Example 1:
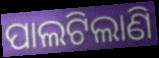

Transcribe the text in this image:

ପାଲଟିଲାଣି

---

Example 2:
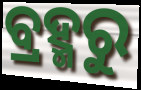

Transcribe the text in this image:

ବ୍ରହ୍ମରୁ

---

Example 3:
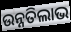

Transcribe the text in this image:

ଉନ୍ନତିଲାଭ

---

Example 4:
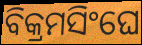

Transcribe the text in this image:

ବିକ୍ରମସିଂଘେ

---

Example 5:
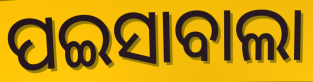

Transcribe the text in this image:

ପଇସାବାଲା